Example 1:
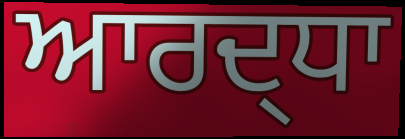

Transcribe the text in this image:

ਆਰਦ੍ਧਾ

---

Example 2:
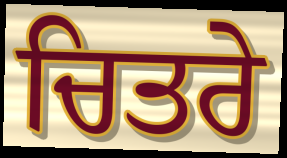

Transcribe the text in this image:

ਚਿਤਰੇ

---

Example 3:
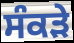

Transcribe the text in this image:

ਸੰਕੜੇ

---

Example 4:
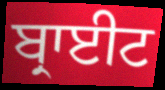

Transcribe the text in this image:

ਬ੍ਰਾਈਟ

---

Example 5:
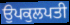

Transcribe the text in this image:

ਉਪਕੁਲਪਤੀ